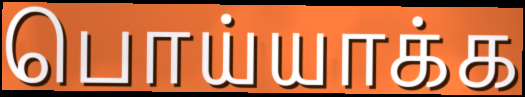
பொய்யாக்க